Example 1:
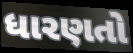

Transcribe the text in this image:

ધારણતો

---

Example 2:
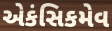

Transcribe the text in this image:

એકંસિકમેવ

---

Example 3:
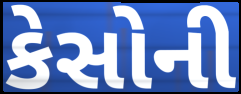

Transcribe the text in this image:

કેસોની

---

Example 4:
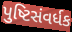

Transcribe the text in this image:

પુષ્ટિસંવર્ધક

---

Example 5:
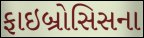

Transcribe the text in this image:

ફાઇબ્રોસિસના